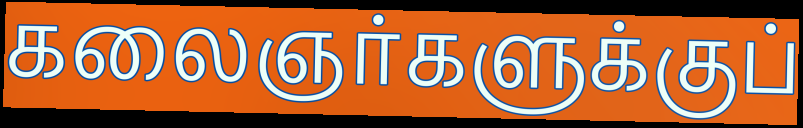
கலைஞர்களுக்குப்